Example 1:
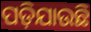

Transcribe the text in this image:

ପଡ଼ିଯାଉଛି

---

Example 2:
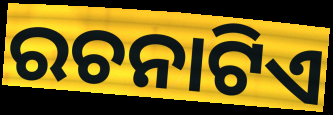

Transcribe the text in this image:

ରଚନାଟିଏ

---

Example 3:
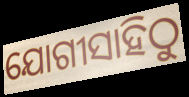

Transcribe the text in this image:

ଯୋଗୀସାହିଠୁ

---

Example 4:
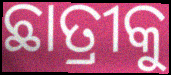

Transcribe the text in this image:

ଛାତ୍ରୀକୁ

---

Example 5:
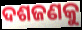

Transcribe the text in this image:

ଦଶଜଣକୁ